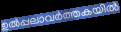
ഉൽപ്പലാവർത്തകയിൽ